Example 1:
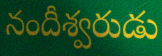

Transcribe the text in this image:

నందీశ్వరుడు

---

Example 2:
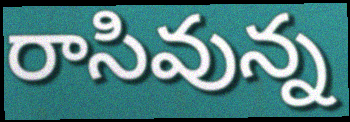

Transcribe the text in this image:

రాసివున్న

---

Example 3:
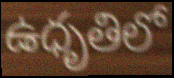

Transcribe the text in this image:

ఉధృతిలో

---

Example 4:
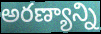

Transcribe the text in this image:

అరణ్యాన్ని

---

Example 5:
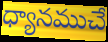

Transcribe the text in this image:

ధ్యానముచే